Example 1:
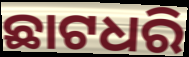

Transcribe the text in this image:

ଛାଟଧରି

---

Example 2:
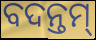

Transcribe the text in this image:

ବଦନ୍ତମ୍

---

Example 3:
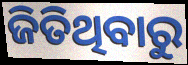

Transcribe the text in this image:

ଜିତିଥିବାରୁ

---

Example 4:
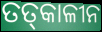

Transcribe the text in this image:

ତତ୍‌କାଳୀନ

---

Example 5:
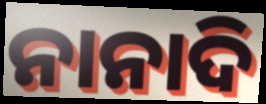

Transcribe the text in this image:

ନାନାଦି